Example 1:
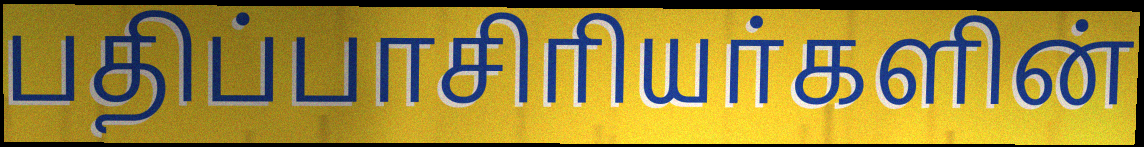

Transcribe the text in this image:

பதிப்பாசிரியர்களின்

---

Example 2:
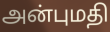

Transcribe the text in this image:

அன்புமதி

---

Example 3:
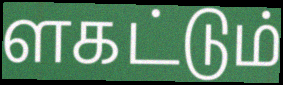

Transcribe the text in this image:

ளகட்டும்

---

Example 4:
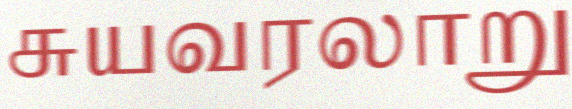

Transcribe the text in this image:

சுயவரலாறு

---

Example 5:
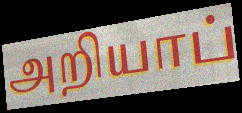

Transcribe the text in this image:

அறியாப்